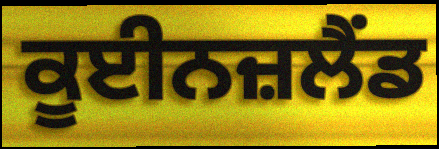
ਕੂਈਨਜ਼ਲੈਂਡ